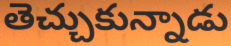
తెచ్చుకున్నాడు